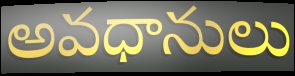
అవధానులు